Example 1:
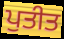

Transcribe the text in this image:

ਪੁਤੀਤ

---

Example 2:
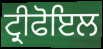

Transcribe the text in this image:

ਟ੍ਰੀਫੋਇਲ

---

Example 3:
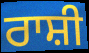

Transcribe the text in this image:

ਰਾਸ਼ੀ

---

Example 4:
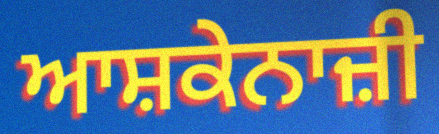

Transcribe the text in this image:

ਆਸ਼ਕੇਨਾਜ਼ੀ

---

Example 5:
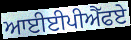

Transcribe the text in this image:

ਆਈਈਪੀਐੱਫਏ